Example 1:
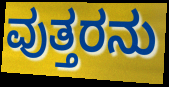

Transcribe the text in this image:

ವುತ್ತರನು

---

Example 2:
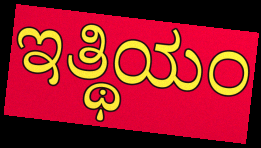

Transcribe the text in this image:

ಇತ್ಥಿಯಂ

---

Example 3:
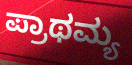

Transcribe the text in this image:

ಪ್ರಾಥಮ್ಯ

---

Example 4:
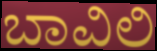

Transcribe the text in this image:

ಬಾವಿಲಿ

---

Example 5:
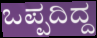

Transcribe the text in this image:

ಒಪ್ಪದಿದ್ದ